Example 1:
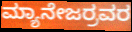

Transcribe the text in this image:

ಮ್ಯಾನೇಜರ್ರವರ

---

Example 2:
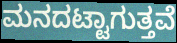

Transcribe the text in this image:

ಮನದಟ್ಟಾಗುತ್ತವೆ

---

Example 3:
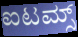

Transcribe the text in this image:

ಐಟಮ್ಸ್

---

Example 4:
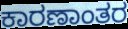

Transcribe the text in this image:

ಕಾರಣಾಂತರ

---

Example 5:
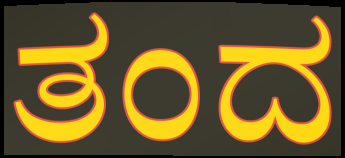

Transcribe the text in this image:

ತಂದ